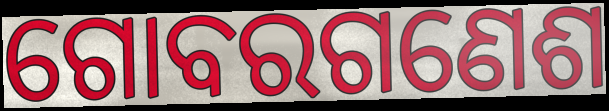
ଗୋବରଗଣେଶ